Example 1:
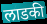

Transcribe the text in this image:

लाडकी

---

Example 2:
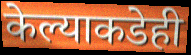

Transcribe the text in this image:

केल्याकडेही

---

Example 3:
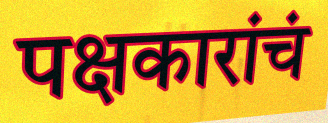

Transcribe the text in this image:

पक्षकारांचं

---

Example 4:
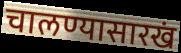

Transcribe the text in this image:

चालण्यासारखं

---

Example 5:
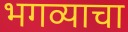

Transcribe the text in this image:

भगव्याचा